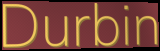
Durbin